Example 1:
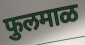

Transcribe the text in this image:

फुलमाळ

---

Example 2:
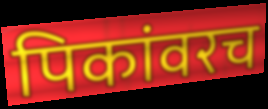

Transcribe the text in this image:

पिकांवरच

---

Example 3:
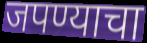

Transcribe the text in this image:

जपण्याचा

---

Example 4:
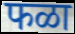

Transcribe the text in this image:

फळा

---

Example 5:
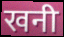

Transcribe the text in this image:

खनी